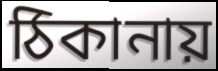
ঠিকানায়